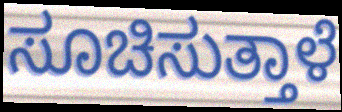
ಸೂಚಿಸುತ್ತಾಳೆ